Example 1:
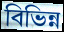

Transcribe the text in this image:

বিভিন্ন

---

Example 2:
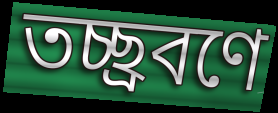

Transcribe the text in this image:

তচ্ছ্রবণে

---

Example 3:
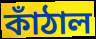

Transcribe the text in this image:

কাঁঠাল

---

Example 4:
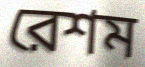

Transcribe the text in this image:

রেশম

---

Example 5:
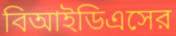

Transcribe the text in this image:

বিআইডিএসের